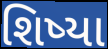
શિષ્યા